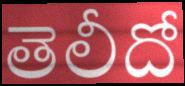
తెలీదో